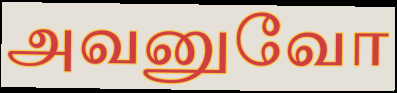
அவனுவோ